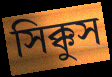
সিক্কুস